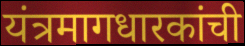
यंत्रमागधारकांची